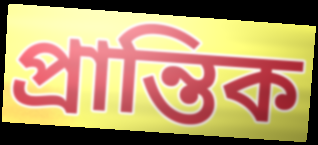
প্রান্তিক